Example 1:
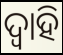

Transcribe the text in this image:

ଦ୍ୱାହି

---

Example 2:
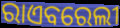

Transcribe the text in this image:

ରାଏବରେଲୀ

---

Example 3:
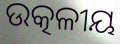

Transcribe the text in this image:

ଉତ୍କଳୀୟ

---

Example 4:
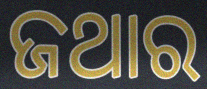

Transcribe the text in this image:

ଜଥାର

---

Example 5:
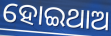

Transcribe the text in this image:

ହୋଇଥାଅ